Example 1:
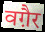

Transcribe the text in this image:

वग़ैर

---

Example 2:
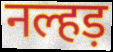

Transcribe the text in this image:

नल्हड़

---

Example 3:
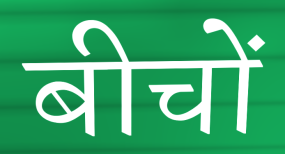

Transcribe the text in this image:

बीचों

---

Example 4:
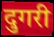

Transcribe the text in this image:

दुगरी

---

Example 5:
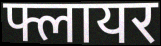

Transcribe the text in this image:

फ्लायर